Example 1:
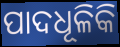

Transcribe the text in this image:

ପାଦଧୂଳିକି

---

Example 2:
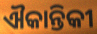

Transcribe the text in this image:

ଐକାନ୍ତିକୀ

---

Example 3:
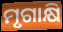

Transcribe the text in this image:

ମୃଗାକ୍ଷି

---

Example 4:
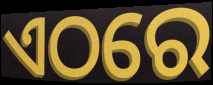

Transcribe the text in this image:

ଏଠରେ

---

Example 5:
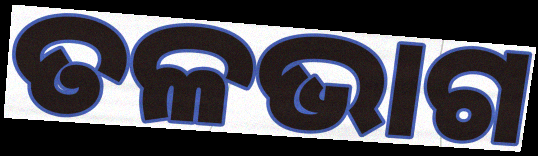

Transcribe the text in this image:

ତଳଭାଗ